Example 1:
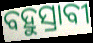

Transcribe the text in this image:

ବହୁସ୍ରାବୀ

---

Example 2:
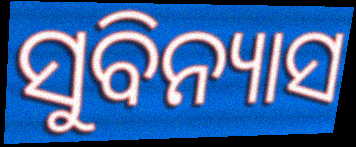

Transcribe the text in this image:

ସୁବିନ୍ୟାସ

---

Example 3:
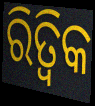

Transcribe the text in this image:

ରିତ୍ୱିକ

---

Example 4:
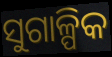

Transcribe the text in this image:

ସୁଗାଳ୍ପିକ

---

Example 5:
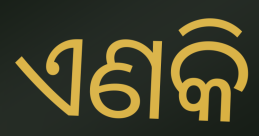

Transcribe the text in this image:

ଏଣକି